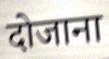
दोजाना